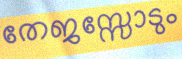
തേജസ്സോടും